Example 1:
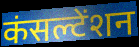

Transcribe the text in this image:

कंसल्टेंशन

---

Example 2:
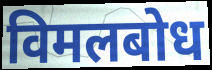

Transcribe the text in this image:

विमलबोध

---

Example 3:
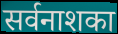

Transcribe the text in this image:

सर्वनाशका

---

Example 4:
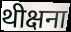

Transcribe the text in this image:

थीक्षना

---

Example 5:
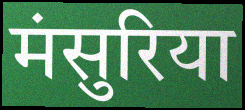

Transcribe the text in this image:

मंसुरिया